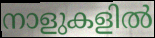
നാളുകളിൽ